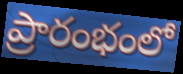
ప్రారంభంలో